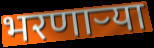
भरणाऱ्या